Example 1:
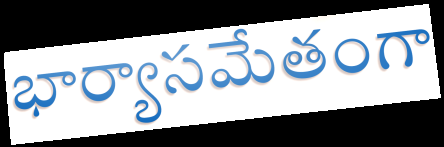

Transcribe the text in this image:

భార్యాసమేతంగా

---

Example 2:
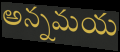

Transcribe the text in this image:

అన్నమయ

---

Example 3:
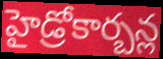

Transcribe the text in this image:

హైడ్రోకార్బన్ల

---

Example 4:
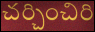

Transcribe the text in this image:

చర్చించిరి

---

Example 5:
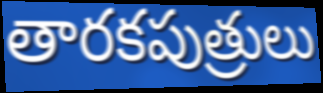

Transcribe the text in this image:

తారకపుత్రులు